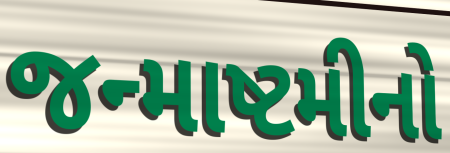
જન્માષ્ટમીનો